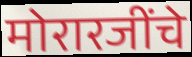
मोरारजींचे